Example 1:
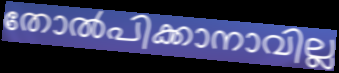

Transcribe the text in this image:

തോൽപിക്കാനാവില്ല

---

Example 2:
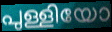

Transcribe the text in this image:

പുള്ളിയോ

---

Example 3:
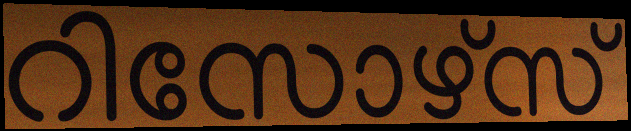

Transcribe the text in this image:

റിസോഴ്സ്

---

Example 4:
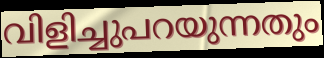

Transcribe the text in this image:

വിളിച്ചുപറയുന്നതും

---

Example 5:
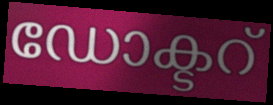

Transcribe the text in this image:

ഡോക്ടറ്